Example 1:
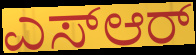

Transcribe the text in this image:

ಎಸ್ಆರ್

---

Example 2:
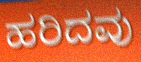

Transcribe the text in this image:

ಹರಿದವು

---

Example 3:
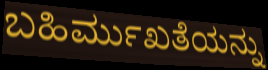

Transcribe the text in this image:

ಬಹಿರ್ಮುಖತೆಯನ್ನು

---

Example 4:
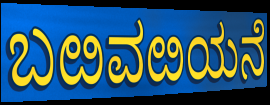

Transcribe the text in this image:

ಬೞವೞಯನೆ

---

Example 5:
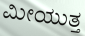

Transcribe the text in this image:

ಮೀಯುತ್ತ